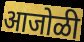
आजोळी